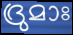
ദ്രുമാഃ